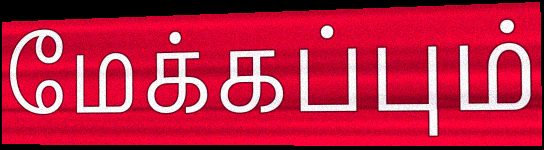
மேக்கப்பும்